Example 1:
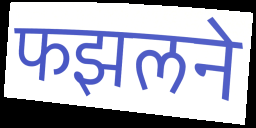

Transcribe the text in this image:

फझलने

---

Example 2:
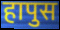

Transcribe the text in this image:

हापुस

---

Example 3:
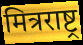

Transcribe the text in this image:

मित्रराष्ट्र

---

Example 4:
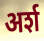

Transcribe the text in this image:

अर्श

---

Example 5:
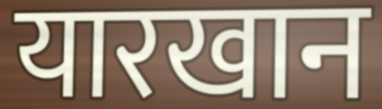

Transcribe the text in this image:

यारखान